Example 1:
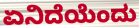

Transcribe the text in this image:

ಏನಿದೆಯೆಂದು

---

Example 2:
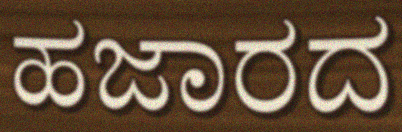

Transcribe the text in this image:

ಹಜಾರದ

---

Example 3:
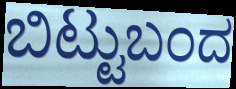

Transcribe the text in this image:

ಬಿಟ್ಟುಬಂದ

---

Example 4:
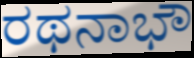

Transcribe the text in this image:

ರಥನಾಭೌ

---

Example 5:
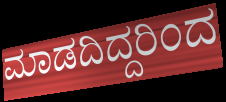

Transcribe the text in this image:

ಮಾಡದಿದ್ದರಿಂದ